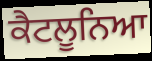
ਕੈਟਲੂਨਿਆ